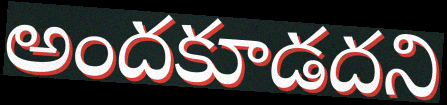
అందకూడదని